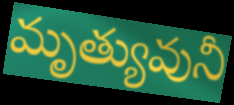
మృత్యువునీ